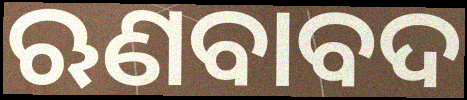
ଋଣବାବଦ